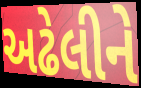
અઢેલીને